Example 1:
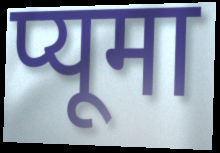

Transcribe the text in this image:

प्यूमा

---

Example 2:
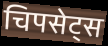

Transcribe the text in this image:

चिपसेट्स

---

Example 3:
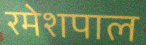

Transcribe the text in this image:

रमेशपाल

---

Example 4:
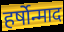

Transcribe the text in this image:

हर्षोन्माद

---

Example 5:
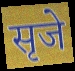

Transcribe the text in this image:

सृजे